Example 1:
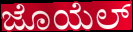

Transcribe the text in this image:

ಜೊಯೆಲ್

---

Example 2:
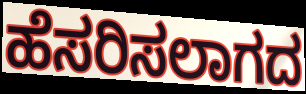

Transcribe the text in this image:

ಹೆಸರಿಸಲಾಗದ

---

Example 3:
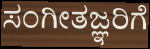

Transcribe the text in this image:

ಸಂಗೀತಜ್ಞರಿಗೆ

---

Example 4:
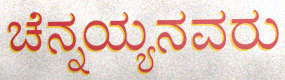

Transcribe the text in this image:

ಚೆನ್ನಯ್ಯನವರು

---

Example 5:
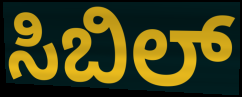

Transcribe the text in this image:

ಸಿಬಿಲ್